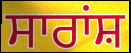
ਸਾਰਾਂਸ਼